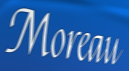
Moreau